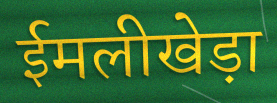
ईमलीखेड़ा